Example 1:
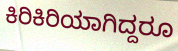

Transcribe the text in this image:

ಕಿರಿಕಿರಿಯಾಗಿದ್ದರೂ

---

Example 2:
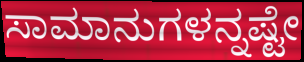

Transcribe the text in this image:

ಸಾಮಾನುಗಳನ್ನಷ್ಟೇ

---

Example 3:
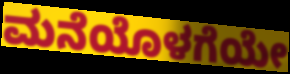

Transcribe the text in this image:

ಮನೆಯೊಳಗೆಯೇ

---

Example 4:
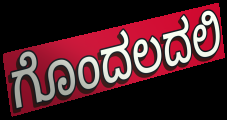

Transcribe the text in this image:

ಗೊಂದಲದಲಿ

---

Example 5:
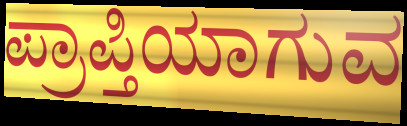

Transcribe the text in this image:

ಪ್ರಾಪ್ತಿಯಾಗುವ